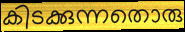
കിടക്കുന്നതൊരു